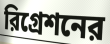
রিগ্রেশনের